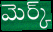
మెర్క్